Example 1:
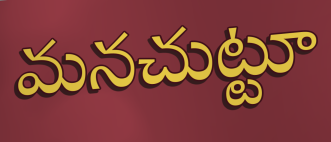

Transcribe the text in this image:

మనచుట్టూ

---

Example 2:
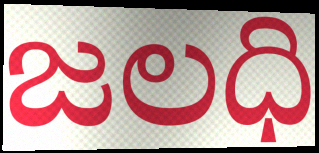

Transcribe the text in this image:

జలధి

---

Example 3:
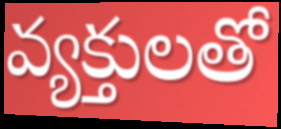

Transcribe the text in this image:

వ్యక్తులతో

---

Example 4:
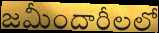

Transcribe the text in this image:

జమీందారీలలో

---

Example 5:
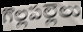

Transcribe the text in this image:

గొల్లపల్లెలు